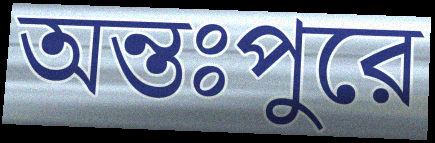
অন্তঃপুরে